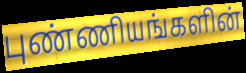
புண்ணியங்களின்